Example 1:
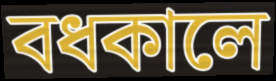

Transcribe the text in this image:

বধকালে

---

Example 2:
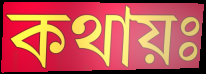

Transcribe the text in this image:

কথায়ঃ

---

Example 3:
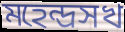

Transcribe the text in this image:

মহেন্দ্রসখ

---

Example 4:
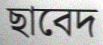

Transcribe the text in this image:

ছাবেদ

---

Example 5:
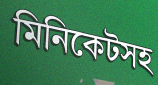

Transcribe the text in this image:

মিনিকেটসহ